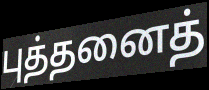
புத்தனைத்